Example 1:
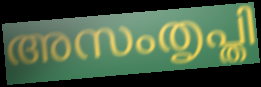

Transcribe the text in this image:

അസംതൃപ്തി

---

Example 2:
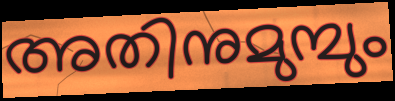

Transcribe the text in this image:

അതിനുമുമ്പും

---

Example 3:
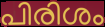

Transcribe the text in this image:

പിരിശം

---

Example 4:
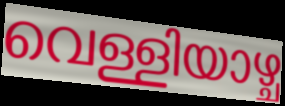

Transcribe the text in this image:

വെള്ളിയാഴ്ച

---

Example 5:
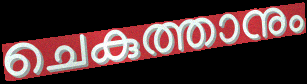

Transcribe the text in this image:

ചെകുത്താനും